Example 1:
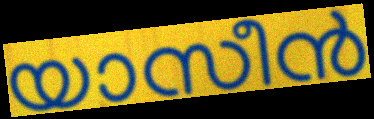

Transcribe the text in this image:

യാസീൻ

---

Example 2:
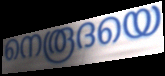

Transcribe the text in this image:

നെരൂദയെ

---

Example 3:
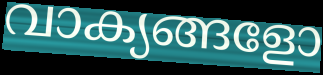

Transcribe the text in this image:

വാക്യങ്ങളോ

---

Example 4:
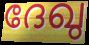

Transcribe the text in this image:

ദേഖു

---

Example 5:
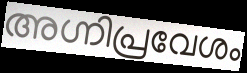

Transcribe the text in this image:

അഗ്നിപ്രവേശം